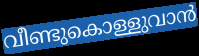
വീണ്ടുകൊള്ളുവാൻ